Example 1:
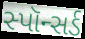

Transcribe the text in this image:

સ્પૉન્સર્ડ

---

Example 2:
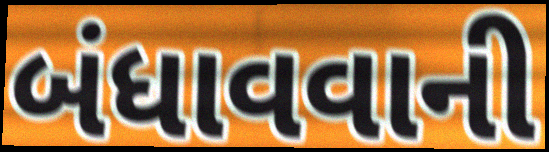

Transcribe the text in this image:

બંધાવવાની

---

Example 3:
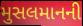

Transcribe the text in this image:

મુસલમાનની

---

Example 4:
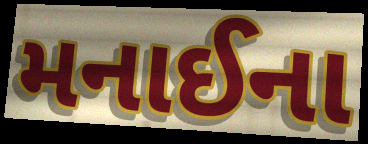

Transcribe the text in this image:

મનાઈના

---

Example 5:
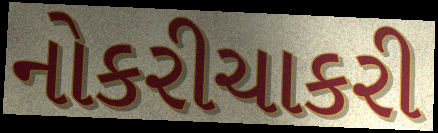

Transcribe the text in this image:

નોકરીચાકરી